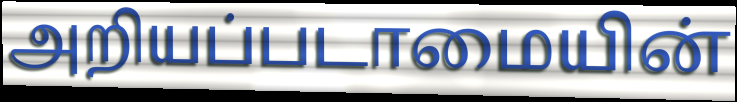
அறியப்படாமையின்